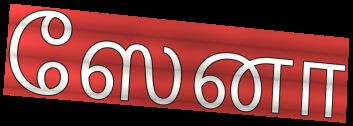
ஸேனா